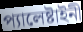
প্যালেষ্টাইনী